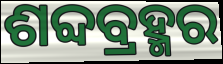
ଶବ୍ଦବ୍ରହ୍ମର